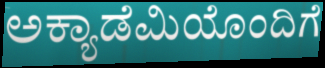
ಅಕ್ಯಾಡೆಮಿಯೊಂದಿಗೆ